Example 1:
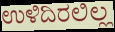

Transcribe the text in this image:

ಉಳಿದಿರಲಿಲ್ಲ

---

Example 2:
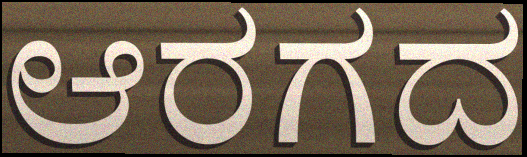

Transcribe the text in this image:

ಆರಗದ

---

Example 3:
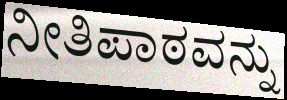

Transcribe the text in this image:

ನೀತಿಪಾಠವನ್ನು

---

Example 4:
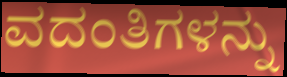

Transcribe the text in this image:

ವದಂತಿಗಳನ್ನು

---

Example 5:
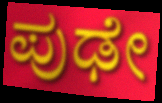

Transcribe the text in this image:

ಪುಢೇ